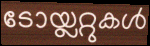
ടോയ്ലറ്റുകൾ